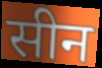
सीन